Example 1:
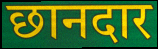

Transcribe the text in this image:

छानदार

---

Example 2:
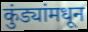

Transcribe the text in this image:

कुंड्यांमधून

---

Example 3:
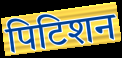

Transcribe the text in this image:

पिटिशन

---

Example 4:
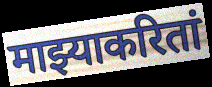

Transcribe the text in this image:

माझ्याकरितां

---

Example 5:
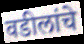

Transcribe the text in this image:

वडीलांचे